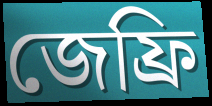
জেফ্রি